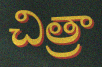
చిత్రా